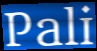
Pali